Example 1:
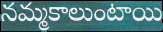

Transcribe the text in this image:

నమ్మకాలుంటాయి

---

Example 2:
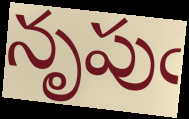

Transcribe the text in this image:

నృపుఁ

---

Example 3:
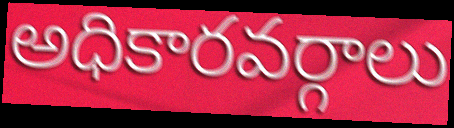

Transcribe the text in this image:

అధికారవర్గాలు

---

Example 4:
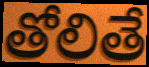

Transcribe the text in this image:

తోలితే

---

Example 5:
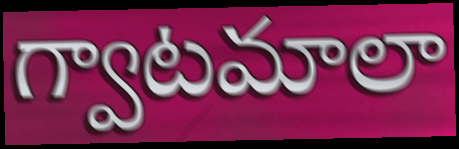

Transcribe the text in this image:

గ్వాటమాలా